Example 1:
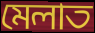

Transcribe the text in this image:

মেলাত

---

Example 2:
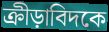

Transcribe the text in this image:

ক্রীড়াবিদকে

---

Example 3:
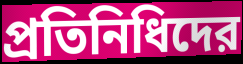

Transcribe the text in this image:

প্রতিনিধিদের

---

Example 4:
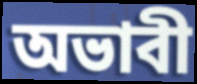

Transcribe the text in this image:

অভাবী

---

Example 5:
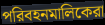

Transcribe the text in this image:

পরিবহনমালিকেরা